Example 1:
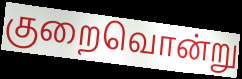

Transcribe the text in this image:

குறைவொன்று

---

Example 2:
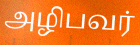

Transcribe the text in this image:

அழிபவர்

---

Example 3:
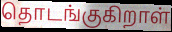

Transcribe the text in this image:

தொடங்குகிறாள்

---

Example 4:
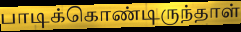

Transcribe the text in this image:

பாடிக்கொண்டிருந்தாள்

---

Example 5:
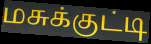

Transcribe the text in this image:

மசுக்குட்டி